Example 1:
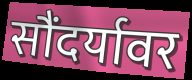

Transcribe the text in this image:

सौंदर्यावर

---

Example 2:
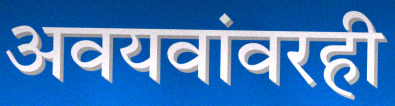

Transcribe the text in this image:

अवयवांवरही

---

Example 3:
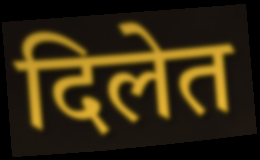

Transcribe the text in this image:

दिलेत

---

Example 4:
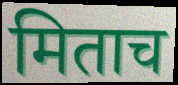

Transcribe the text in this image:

मिताच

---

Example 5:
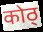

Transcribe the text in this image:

कोठ्